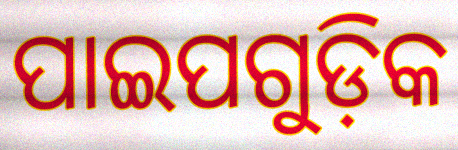
ପାଇପଗୁଡ଼ିକ